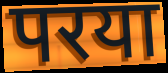
परया